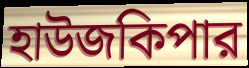
হাউজকিপার